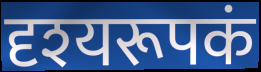
दृश्‍यरूपकं